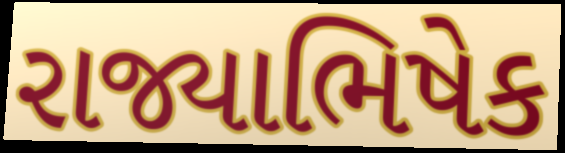
રાજ્યાભિષેક